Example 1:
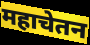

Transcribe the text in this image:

महाचेतन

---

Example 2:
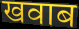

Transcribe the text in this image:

खवाब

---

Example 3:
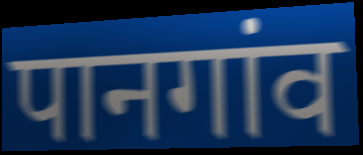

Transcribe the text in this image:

पानगांव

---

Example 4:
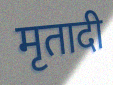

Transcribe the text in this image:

मृतादी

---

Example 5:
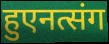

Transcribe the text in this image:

हुएनत्संग